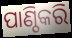
ପାଣ୍ଠିକରି